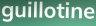
guillotine